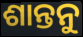
ଶାନ୍ତନୁ